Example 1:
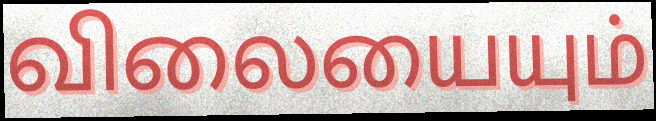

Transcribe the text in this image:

விலையையும்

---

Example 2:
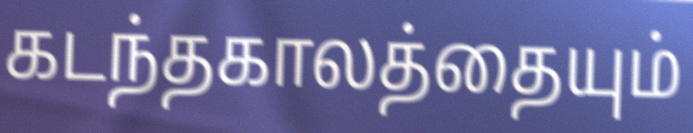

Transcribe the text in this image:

கடந்தகாலத்தையும்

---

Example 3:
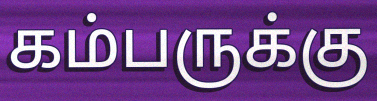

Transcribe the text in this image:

கம்பருக்கு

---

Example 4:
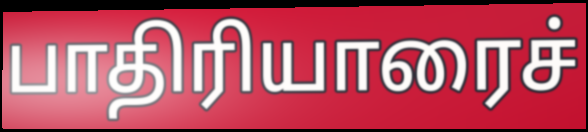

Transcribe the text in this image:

பாதிரியாரைச்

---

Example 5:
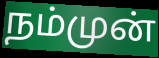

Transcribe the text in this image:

நம்முன்